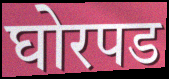
घोरपड